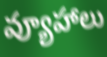
వ్యూహాలు